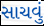
સાચવું